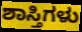
ಶಾಸ್ತಿಗಳು